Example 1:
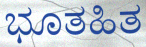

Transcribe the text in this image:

ಭೂತಹಿತ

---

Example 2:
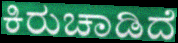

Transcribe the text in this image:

ಕಿರುಚಾಡಿದೆ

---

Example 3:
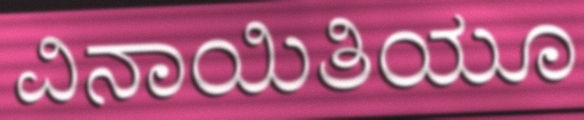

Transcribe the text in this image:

ವಿನಾಯಿತಿಯೂ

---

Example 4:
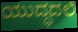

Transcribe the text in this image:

ಯುದ್ಧದಲಿ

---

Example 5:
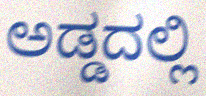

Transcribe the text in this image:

ಅಡ್ಡದಲ್ಲಿ